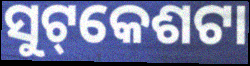
ସୁଟ୍‌କେଶଟା